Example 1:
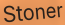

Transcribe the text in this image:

Stoner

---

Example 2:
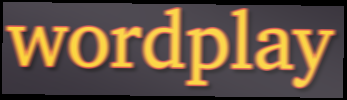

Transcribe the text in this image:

wordplay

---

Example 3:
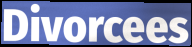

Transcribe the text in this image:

Divorcees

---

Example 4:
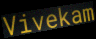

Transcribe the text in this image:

Vivekam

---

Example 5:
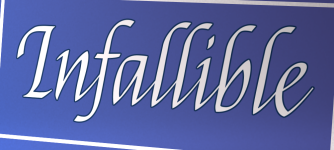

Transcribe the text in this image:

Infallible